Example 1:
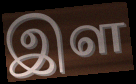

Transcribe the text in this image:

இள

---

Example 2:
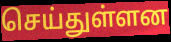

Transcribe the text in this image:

செய்துள்ளன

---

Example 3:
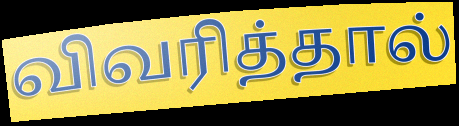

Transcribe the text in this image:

விவரித்தால்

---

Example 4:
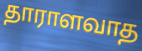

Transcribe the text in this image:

தாராளவாத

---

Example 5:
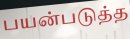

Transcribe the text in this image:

பயன்படுத்த